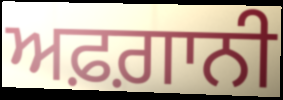
ਅਫ਼ਗ਼ਾਨੀ